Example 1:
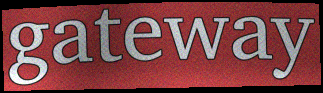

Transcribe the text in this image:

gateway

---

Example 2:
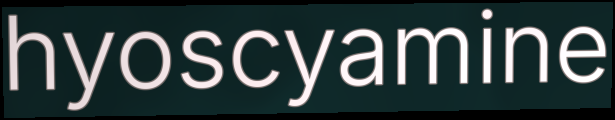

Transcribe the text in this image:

hyoscyamine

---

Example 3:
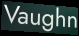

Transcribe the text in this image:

Vaughn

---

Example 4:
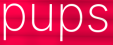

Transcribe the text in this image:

pups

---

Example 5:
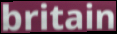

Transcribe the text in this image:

britain